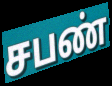
சபண்